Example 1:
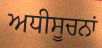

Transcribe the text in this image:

ਅਧੀਸੂਚਨਾਂ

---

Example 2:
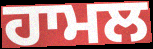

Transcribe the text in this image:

ਹਾਮਲ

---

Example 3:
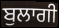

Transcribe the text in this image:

ਬੁਲਾਗੀ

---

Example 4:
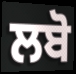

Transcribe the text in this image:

ਲਬੋ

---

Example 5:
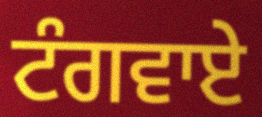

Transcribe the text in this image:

ਟੰਗਵਾਏ